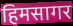
हिमसागर